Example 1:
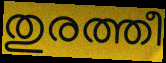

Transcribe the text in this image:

തുരത്തീ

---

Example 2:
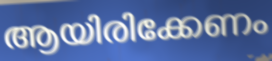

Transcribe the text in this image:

ആയിരിക്കേണം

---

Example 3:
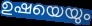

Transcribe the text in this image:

ഉഷയെയും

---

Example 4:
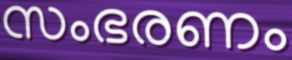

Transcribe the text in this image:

സംഭരണം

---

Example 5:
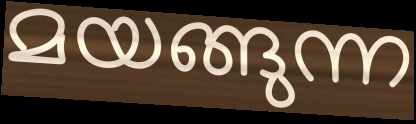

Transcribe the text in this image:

മയങ്ങുന്ന